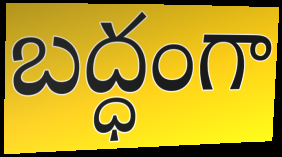
బద్ధంగా